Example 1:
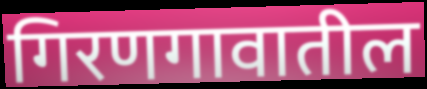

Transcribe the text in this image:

गिरणगावातील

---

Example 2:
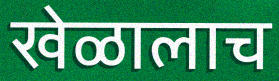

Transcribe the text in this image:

खेळालाच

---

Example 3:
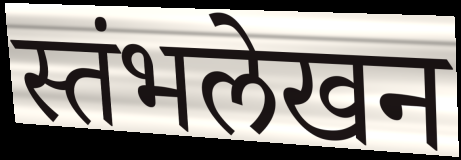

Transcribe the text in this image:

स्तंभलेखन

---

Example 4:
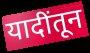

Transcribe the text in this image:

यादींतून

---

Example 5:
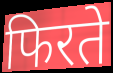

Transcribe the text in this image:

फिरते